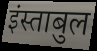
इंस्ताबुल